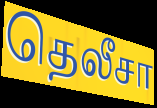
தெலீசா